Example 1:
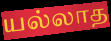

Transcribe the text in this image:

யல்லாத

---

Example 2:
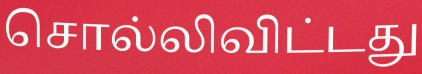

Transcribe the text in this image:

சொல்லிவிட்டது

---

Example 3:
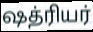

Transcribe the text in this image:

ஷத்ரியர்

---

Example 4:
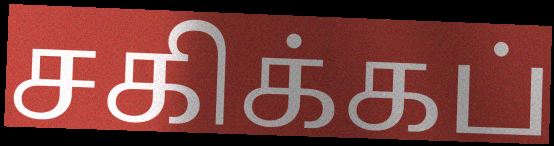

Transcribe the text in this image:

சகிக்கப்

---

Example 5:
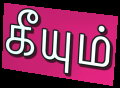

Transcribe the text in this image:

கீயும்